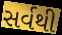
સર્વથી